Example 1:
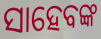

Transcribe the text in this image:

ସାହେବଙ୍କ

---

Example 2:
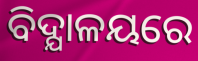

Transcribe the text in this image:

ବିଦ୍ଯାଳୟରେ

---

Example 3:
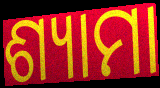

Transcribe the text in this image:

ଶ୍ୟାମା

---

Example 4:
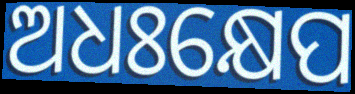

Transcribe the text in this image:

ଅଧଃକ୍ଷେପ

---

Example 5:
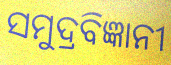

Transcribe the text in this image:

ସମୁଦ୍ରବିଜ୍ଞାନୀ